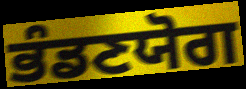
ਭੰਡਣਯੋਗ